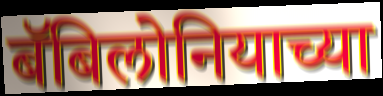
बॅबिलोनियाच्या